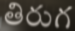
తిరుగ